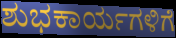
ಶುಭಕಾರ್ಯಗಳಿಗೆ